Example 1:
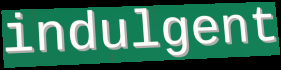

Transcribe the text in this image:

indulgent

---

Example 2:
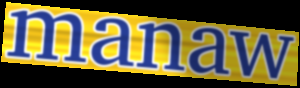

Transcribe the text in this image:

manaw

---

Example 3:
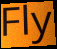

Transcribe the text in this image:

Fly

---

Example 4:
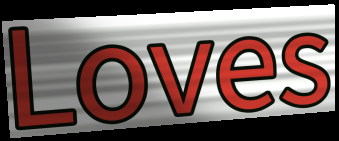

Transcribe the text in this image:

Loves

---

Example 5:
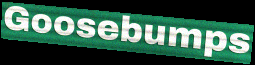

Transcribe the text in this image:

Goosebumps